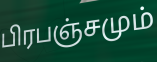
பிரபஞ்சமும்